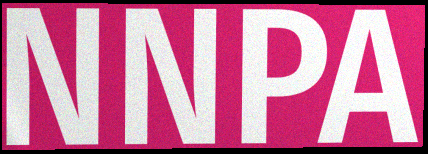
NNPA